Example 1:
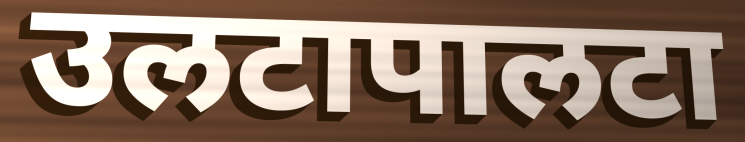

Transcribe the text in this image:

उलटापालटा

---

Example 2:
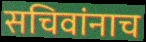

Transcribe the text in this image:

सचिवांनाच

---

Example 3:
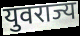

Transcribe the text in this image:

युवराज्य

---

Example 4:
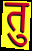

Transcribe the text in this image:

तु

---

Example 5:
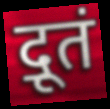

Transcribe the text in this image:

दू॒तं